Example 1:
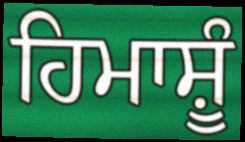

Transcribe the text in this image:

ਹਿਮਾਸ਼ੂੰ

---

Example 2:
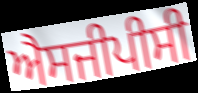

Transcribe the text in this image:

ਐਸਜੀਪੀਸੀ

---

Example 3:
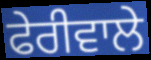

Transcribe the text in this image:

ਫੇਰੀਵਾਲੇ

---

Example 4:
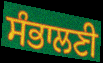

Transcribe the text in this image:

ਸੰਭਾਲਣੀ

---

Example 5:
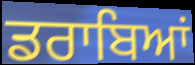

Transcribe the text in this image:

ਡਰਾਬਿਆਂ